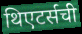
थिएटर्सची